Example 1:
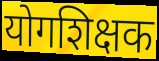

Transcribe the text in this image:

योगशिक्षक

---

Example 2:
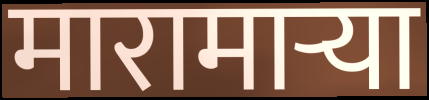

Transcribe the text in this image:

मारामाऱ्या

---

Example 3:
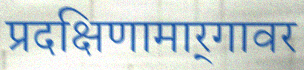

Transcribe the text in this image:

प्रदक्षिणामार्गावर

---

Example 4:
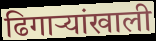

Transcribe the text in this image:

ढिगाऱ्यांखाली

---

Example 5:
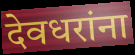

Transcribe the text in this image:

देवधरांना